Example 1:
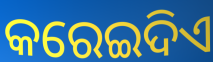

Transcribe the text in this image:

କରେଇଦିଏ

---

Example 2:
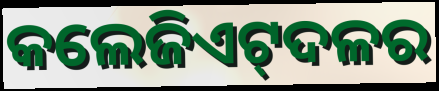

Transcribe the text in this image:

କଲେଜିଏଟ୍‍ଦଳର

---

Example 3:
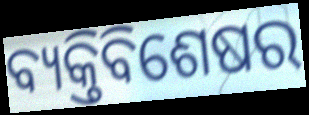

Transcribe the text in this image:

ବ୍ୟକ୍ତିବିଶେଷର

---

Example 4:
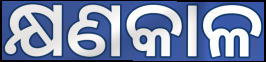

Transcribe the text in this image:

କ୍ଷଣକାଳ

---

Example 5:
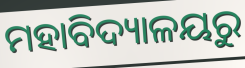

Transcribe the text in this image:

ମହାବିଦ୍ୟାଳୟରୁ